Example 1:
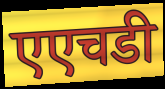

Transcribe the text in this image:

एएचडी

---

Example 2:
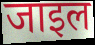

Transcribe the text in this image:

जाइल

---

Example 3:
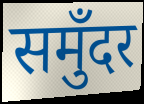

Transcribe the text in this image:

समुँदर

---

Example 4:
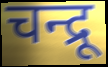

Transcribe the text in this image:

चन्द्रू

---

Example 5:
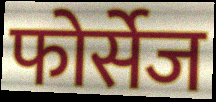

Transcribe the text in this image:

फोर्सेज